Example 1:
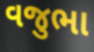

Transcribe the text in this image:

વજુભા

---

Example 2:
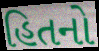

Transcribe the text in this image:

હિતનો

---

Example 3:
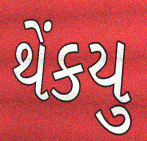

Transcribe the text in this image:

થેંકયુ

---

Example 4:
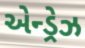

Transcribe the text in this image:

એન્ડ્રેઝ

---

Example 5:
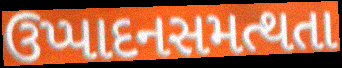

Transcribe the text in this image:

ઉપ્પાદનસમત્થતા